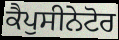
ਕੈਪੁਸੀਨੇਟੋਰ